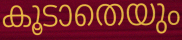
കൂടാതെയും